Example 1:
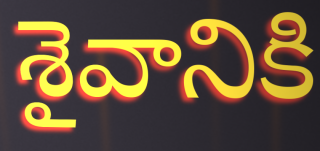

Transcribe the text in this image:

శైవానికి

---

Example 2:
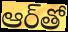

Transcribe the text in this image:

ఆర్‌తో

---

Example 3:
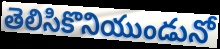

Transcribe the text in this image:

తెలిసికొనియుండునో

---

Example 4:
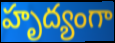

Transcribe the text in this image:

హృద్యంగా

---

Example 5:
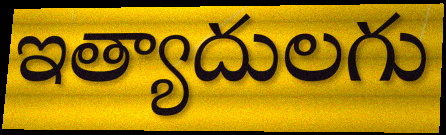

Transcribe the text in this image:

ఇత్యాదులగు